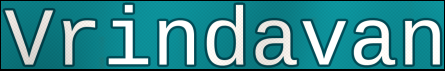
Vrindavan